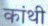
कांथी